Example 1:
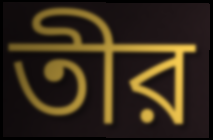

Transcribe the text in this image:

তীর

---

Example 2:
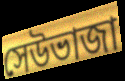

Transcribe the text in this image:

সেউভাজা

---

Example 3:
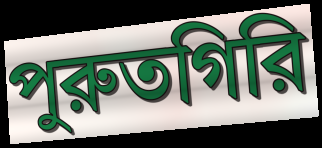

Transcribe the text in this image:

পুরুতগিরি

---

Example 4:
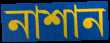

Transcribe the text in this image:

নাশান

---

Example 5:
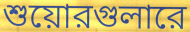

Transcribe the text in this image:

শুয়োরগুলারে